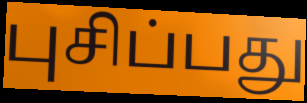
புசிப்பது